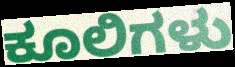
ಕೂಲಿಗಳು